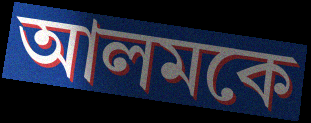
আলমকে